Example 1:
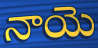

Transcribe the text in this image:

నాయె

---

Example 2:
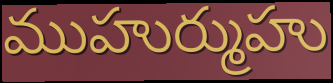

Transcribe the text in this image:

ముహుర్ముహు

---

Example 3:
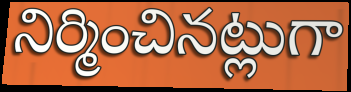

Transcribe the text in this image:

నిర్మించినట్లుగా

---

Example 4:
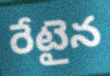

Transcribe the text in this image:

రేటైన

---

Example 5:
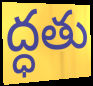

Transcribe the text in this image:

ద్ధతు